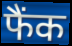
फैंक